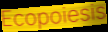
Ecopoiesis